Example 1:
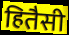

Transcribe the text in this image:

हितैसी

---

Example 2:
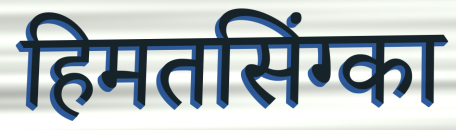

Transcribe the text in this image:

हिमतसिंग्का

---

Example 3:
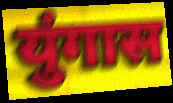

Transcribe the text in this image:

युंगास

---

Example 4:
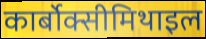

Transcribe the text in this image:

कार्बोक्सीमिथाइल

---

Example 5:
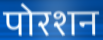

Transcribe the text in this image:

पोरशन